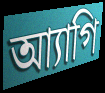
আ্যাগি